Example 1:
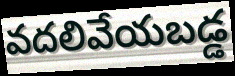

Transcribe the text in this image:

వదలివేయబడ్డ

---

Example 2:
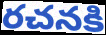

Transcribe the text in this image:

రచనకి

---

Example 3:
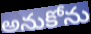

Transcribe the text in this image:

అనుకోను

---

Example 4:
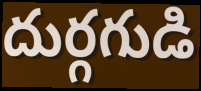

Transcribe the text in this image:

దుర్గగుడి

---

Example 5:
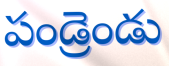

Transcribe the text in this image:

పండ్రెండు